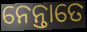
ନେନ୍ତାତେ